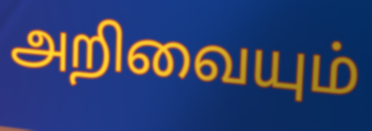
அறிவையும்